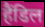
हैंडिल